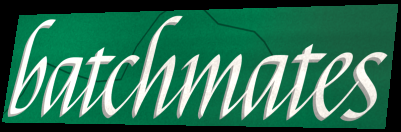
batchmates